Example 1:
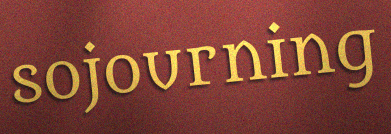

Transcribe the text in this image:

sojourning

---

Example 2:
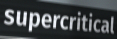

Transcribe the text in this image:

supercritical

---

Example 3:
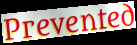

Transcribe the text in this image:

Prevented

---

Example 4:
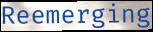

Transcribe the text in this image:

Reemerging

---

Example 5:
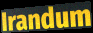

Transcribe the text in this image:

Irandum